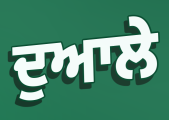
ਦੁਆਲੇ